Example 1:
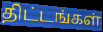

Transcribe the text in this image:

திட்டங்கள்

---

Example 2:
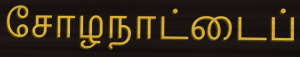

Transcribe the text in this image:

சோழநாட்டைப்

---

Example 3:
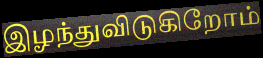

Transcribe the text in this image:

இழந்துவிடுகிறோம்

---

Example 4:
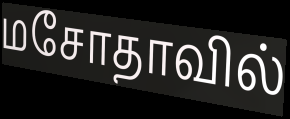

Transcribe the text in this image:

மசோதாவில்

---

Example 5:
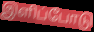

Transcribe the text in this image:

இளிப்போடு